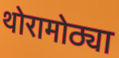
थोरामोठ्या